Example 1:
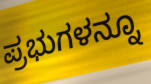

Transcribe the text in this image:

ಪ್ರಭುಗಳನ್ನೂ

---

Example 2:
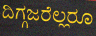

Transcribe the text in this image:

ದಿಗ್ಗಜರೆಲ್ಲರೂ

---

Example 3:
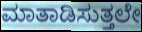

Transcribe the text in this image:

ಮಾತಾಡಿಸುತ್ತಲೇ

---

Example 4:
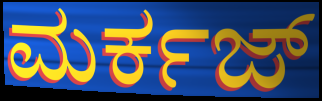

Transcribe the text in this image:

ಮರ್ಕಜ್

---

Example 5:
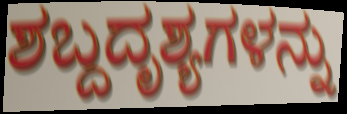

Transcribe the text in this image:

ಶಬ್ದದೃಶ್ಯಗಳನ್ನು